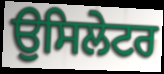
ਉਸਿਲੇਟਰ